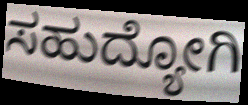
ಸಹುದ್ಯೋಗಿ